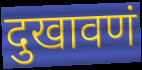
दुखावणं